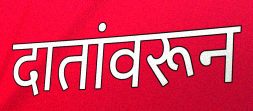
दातांवरून